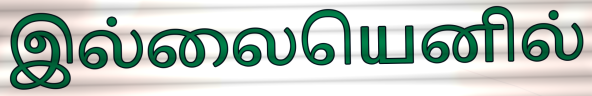
இல்லையெனில்